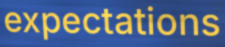
expectations